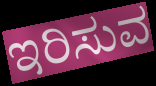
ಇರಿಸುವ